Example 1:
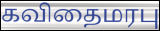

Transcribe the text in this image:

கவிதைமரபு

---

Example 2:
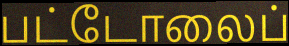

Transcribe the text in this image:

பட்டோலைப்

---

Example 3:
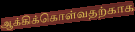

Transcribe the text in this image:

ஆக்கிக்கொள்வதற்காக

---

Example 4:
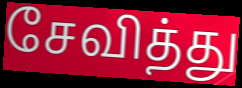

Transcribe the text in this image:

சேவித்து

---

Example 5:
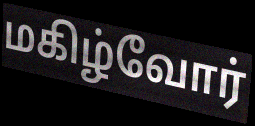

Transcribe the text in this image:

மகிழ்வோர்